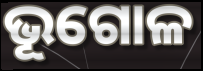
ଭୂଗୋଳ